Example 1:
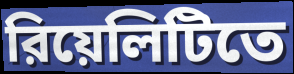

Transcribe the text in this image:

রিয়েলিটিতে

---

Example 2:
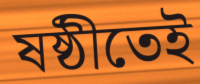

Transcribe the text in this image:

ষষ্ঠীতেই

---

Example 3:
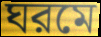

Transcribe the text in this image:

ঘরমে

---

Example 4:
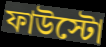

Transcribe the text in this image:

ফাউস্টো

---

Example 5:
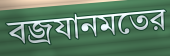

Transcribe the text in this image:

বজ্রযানমতের